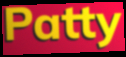
Patty